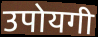
उपोयगी